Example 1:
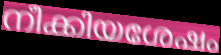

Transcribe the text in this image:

നീക്കിയശേഷം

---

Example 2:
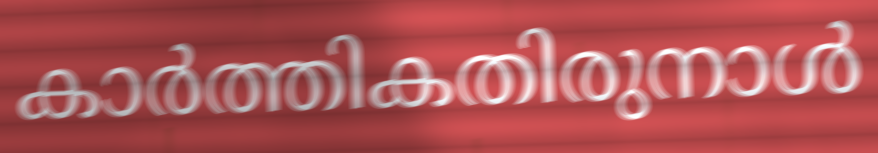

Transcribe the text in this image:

കാർത്തികതിരുനാൾ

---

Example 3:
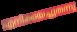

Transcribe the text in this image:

എനിക്കയച്ചുതന്നു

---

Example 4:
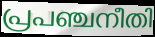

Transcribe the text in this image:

പ്രപഞ്ചനീതി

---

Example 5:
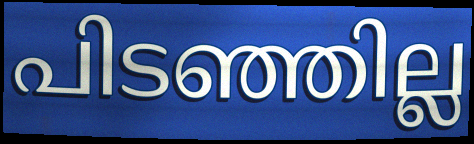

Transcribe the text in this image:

പിടഞ്ഞില്ല